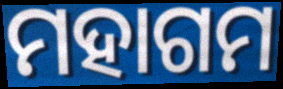
ମହାଗମ